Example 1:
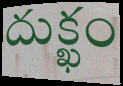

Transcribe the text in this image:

దుక్ఖం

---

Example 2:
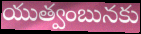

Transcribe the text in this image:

యుత్వంబునకు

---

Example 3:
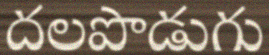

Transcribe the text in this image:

దలపొడుగు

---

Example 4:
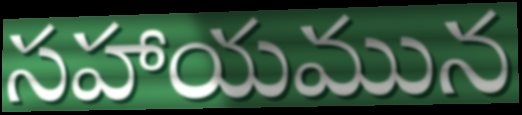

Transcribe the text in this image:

సహాయమున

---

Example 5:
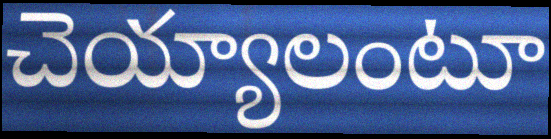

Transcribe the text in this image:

చెయ్యాలంటూ